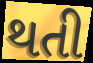
થતી